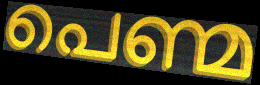
പെണ്മ